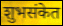
शुभसंकेत